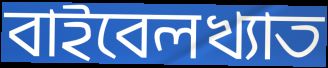
বাইবেলখ্যাত